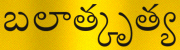
బలాత్కృత్య